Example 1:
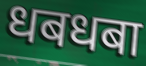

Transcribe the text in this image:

धबधबा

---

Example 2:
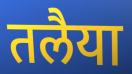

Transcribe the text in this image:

तलैया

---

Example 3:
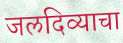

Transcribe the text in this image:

जलदिव्याचा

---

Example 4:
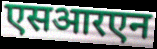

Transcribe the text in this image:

एसआरएन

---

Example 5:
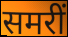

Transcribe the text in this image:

समरीं